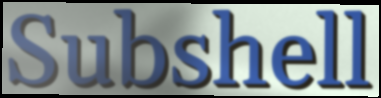
Subshell